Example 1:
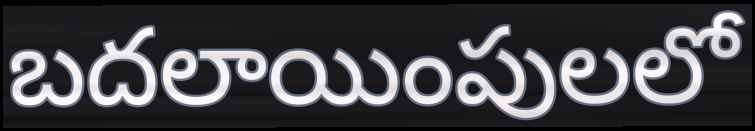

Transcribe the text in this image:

బదలాయింపులలో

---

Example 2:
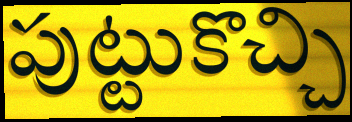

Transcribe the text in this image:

పుట్టుకొచ్చి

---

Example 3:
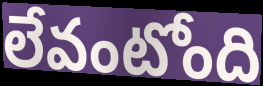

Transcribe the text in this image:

లేవంటోంది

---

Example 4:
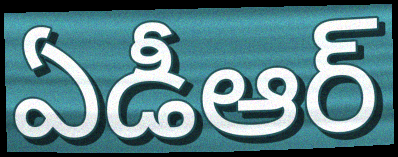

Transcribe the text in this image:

ఏడీఆర్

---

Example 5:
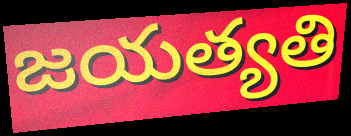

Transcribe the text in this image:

జయత్యతి